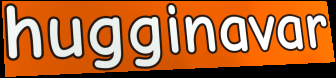
hugginavar